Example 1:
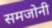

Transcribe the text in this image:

समजोनी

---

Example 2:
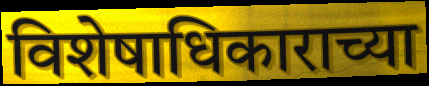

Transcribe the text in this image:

विशेषाधिकाराच्या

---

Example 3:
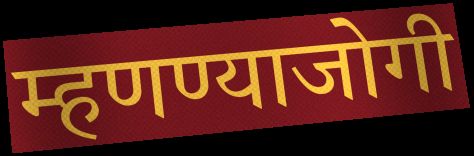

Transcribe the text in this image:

म्हणण्याजोगी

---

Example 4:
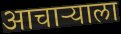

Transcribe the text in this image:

आचाऱ्याला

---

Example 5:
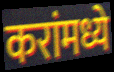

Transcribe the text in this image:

करांमध्ये